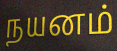
நயனம்